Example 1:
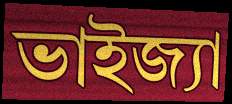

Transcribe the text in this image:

ভাইজ্যা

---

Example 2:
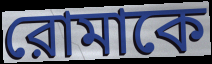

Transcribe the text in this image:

রোমাকে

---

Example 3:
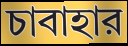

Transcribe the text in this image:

চাবাহার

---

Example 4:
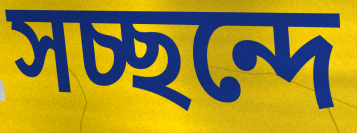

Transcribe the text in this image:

সচ্ছন্দে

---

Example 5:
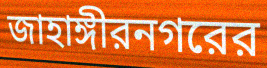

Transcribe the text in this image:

জাহাঙ্গীরনগরের